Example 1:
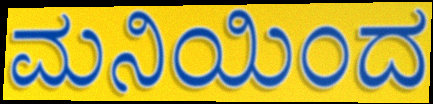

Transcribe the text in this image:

ಮನಿಯಿಂದ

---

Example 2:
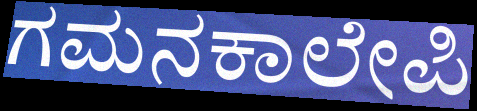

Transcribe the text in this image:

ಗಮನಕಾಲೇಪಿ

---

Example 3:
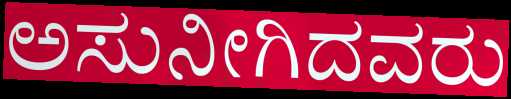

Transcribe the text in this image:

ಅಸುನೀಗಿದವರು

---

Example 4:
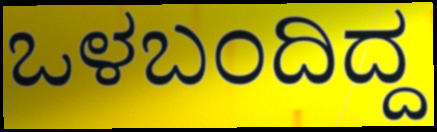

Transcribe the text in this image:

ಒಳಬಂದಿದ್ದ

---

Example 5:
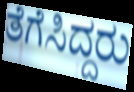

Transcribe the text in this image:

ತೆಗೆಸಿದ್ದರು